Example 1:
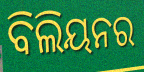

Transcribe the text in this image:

ବିଲିୟନର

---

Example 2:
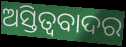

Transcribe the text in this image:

ଅସ୍ତିତ୍ବବାଦର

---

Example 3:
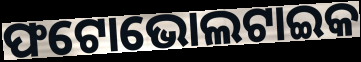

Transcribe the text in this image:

ଫଟୋଭୋଲଟାଇକ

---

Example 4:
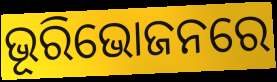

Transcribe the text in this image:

ଭୂରିଭୋଜନରେ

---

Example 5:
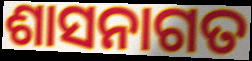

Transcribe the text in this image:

ଶାସନାଗତ